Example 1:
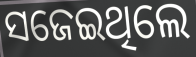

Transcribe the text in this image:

ସଜେଇଥିଲେ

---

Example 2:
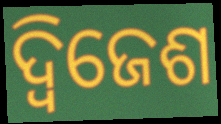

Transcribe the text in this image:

ଦ୍ୱିଜେଶ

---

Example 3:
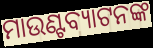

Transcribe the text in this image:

ମାଉଣ୍ଟବ୍ୟାଟନଙ୍କ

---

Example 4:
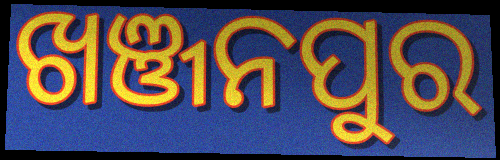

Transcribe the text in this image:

ଖଞ୍ଜନପୁର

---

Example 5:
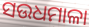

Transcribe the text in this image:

ସଉଧମାଳା